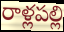
రాళ్లపల్లి